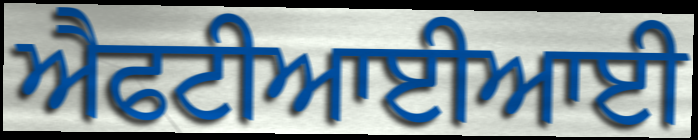
ਐਫਟੀਆਈਆਈ